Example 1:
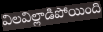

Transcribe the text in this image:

విలవిల్లాడిపోయింది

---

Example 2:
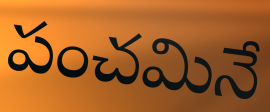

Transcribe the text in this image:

పంచమినే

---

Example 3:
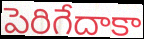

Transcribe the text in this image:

పెరిగేదాకా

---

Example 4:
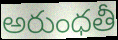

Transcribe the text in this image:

అరుంధతీ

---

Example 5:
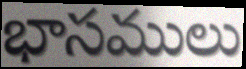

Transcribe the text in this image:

భాసములు